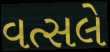
વત્સલે